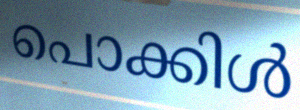
പൊക്കിൾ